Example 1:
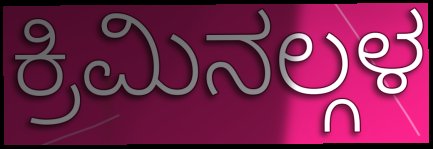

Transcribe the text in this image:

ಕ್ರಿಮಿನಲ್ಗಳ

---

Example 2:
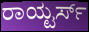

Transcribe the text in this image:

ರಾಯ್ಟರ್ಸ್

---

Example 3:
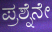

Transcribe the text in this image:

ಪ್ರಶ್ನೆನೇ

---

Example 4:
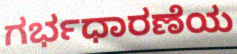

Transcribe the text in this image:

ಗರ್ಭಧಾರಣೆಯ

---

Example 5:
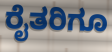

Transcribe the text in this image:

ರೈತರಿಗೂ